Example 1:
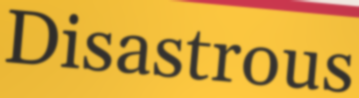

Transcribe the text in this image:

Disastrous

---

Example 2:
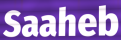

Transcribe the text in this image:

Saaheb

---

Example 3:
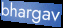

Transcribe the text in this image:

bhargav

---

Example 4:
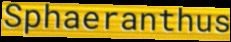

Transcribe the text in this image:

Sphaeranthus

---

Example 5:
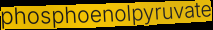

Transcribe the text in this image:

phosphoenolpyruvate